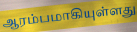
ஆரம்பமாகியுள்ளது